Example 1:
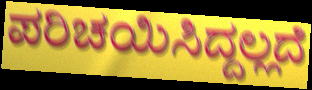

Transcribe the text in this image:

ಪರಿಚಯಿಸಿದ್ದಲ್ಲದೆ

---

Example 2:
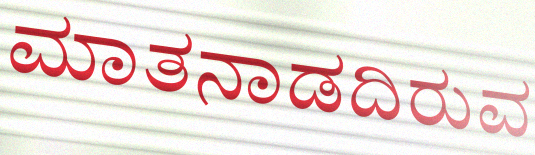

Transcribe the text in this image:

ಮಾತನಾಡದಿರುವ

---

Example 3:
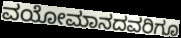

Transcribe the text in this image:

ವಯೋಮಾನದವರಿಗೂ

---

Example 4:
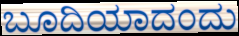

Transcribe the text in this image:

ಬೂದಿಯಾದಂದು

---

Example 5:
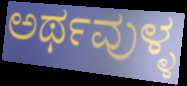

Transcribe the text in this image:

ಅರ್ಥವುಳ್ಳ